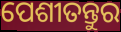
ପେଶୀତନ୍ତୁର